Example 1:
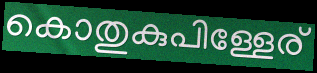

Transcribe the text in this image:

കൊതുകുപിള്ളേര്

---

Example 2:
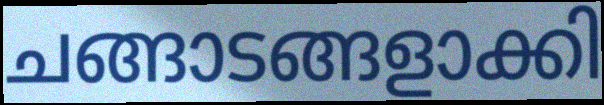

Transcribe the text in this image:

ചങ്ങാടങ്ങളാക്കി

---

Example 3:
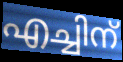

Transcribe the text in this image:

എച്ചിന്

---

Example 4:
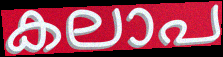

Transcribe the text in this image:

കലാപ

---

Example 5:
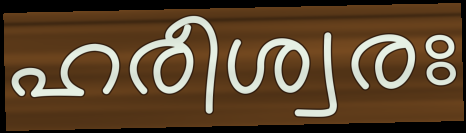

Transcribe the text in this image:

ഹരീശ്വരഃ